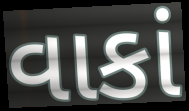
વાકાં